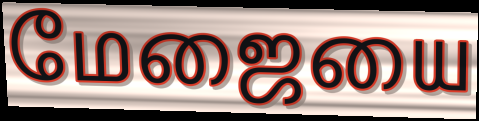
மேஜையை